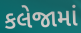
કલેજામાં